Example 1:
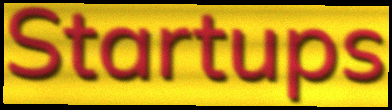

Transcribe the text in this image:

Startups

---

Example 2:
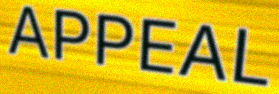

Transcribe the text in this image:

APPEAL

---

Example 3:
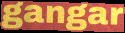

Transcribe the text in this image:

gangar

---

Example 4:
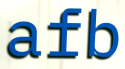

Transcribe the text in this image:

afb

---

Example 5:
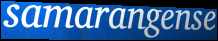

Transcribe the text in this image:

samarangense